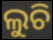
ଲୁଚି